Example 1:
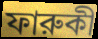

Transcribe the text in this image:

ফারুকী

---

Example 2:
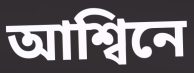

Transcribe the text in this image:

আশ্বিনে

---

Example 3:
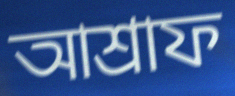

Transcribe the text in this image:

আশ্রাফ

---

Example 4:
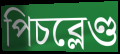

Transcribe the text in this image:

পিচব্লেণ্ড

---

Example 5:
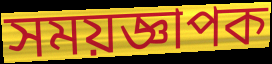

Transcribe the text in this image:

সময়জ্ঞাপক